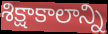
శిక్షాకాలాన్ని